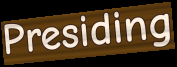
Presiding